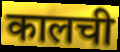
कालची